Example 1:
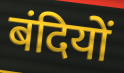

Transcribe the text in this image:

बंदियों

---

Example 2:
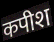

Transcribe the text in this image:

कपीश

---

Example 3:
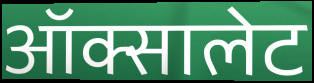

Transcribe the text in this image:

ऑक्सालेट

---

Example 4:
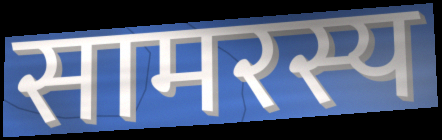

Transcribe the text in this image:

सामरस्य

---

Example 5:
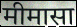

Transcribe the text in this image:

मीमासा